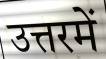
उत्तरमें